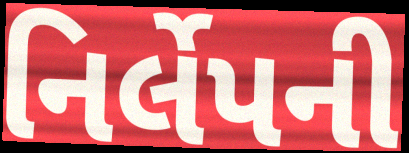
નિર્લેપની